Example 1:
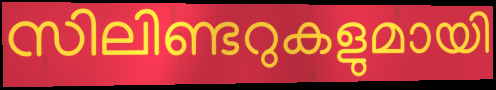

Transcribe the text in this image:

സിലിണ്ടറുകളുമായി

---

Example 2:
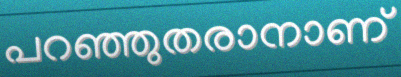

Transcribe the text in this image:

പറഞ്ഞുതരാനാണ്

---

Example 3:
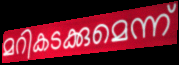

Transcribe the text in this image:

മറികടക്കുമെന്ന്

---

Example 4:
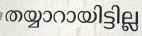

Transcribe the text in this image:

തയ്യാറായിട്ടില്ല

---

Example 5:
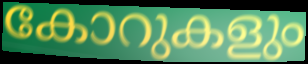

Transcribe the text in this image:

കോറുകളും